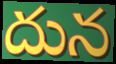
దున